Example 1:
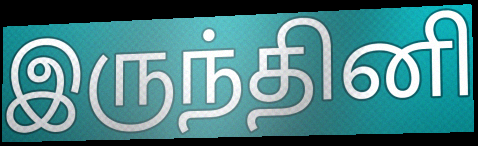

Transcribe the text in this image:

இருந்தினி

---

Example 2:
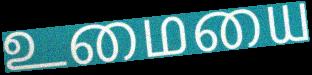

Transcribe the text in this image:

உமையை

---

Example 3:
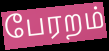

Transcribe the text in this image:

பேரறம்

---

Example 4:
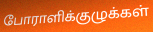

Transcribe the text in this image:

போராளிக்குழுக்கள்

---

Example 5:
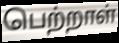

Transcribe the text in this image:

பெற்றாள்